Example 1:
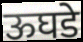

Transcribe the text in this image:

ऊघडे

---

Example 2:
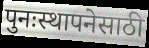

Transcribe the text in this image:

पुनःस्थापनेसाठी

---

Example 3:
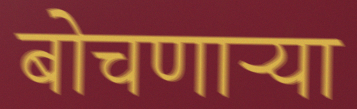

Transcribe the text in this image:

बोचणाऱ्या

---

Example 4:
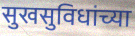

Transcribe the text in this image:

सुखसुविधांच्या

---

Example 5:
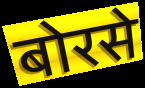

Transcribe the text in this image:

बोरसे